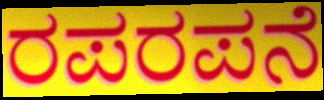
ರಪರಪನೆ